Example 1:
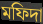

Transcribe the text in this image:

মফিদা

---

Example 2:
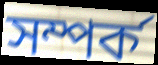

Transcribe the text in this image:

সম্পর্ক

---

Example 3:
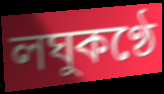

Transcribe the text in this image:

লঘুকণ্ঠে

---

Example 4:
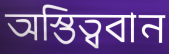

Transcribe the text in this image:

অস্তিত্ববান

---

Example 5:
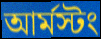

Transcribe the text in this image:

আর্মস্টং